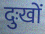
दुःखों